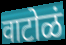
वाटोळं